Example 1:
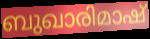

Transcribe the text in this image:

ബുഖാരിമാഷ്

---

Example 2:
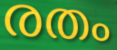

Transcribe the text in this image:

രതം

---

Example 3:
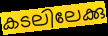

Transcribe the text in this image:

കടലിലേക്കു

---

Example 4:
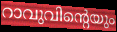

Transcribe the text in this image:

റാവുവിന്റെയും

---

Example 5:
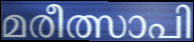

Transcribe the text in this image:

മരീത്സാപി